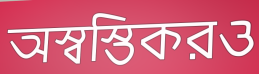
অস্বস্তিকরও